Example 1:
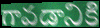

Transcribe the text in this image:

గావడానికి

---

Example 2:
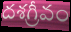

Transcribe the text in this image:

దశగ్రీవం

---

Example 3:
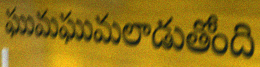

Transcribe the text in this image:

ఘుమఘుమలాడుతోంది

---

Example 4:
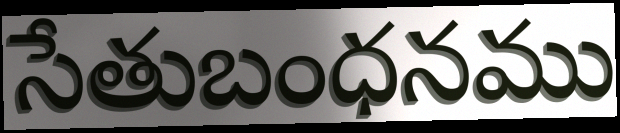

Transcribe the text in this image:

సేతుబంధనము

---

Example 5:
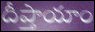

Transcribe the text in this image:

దీప్తాయాం